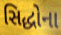
સિદ્ધોના